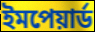
ইমপেয়াৰ্ড